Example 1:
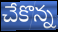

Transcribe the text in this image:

చేకొన్న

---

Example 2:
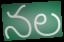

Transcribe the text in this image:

నల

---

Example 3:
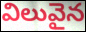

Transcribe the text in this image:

విలువైన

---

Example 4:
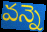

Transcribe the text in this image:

వన్నె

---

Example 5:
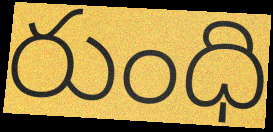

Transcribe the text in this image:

రుంధి